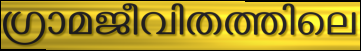
ഗ്രാമജീവിതത്തിലെ